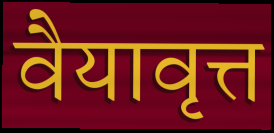
वैयावृत्त